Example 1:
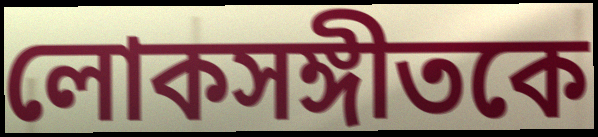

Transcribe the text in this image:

লোকসঙ্গীতকে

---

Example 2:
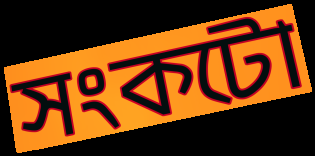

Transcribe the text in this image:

সংকটো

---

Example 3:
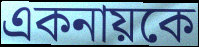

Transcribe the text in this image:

একনায়কে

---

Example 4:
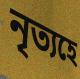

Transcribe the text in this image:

নৃত্যহে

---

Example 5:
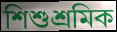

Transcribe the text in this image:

শিশুশ্ৰমিক